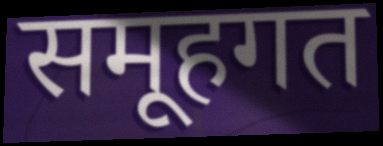
समूहगत